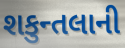
શકુન્તલાની